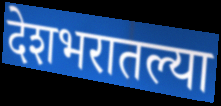
देशभरातल्या